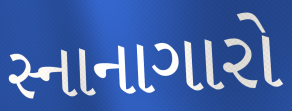
સ્નાનાગારો